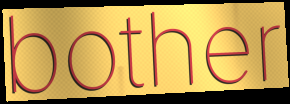
bother